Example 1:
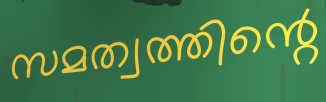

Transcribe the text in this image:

സമത്വത്തിന്റെ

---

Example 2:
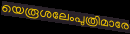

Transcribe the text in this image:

യെരൂശലേംപുത്രിമാരേ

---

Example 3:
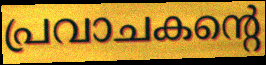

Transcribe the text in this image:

പ്രവാചകന്റെ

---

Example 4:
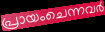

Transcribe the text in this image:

പ്രായംചെന്നവർ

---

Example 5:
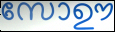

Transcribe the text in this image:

സോഊ